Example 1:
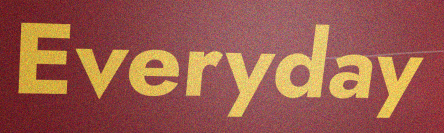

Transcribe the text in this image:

Everyday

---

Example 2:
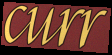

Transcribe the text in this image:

curr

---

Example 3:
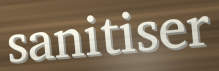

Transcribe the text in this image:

sanitiser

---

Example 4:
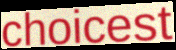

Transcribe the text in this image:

choicest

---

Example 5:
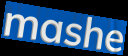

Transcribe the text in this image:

mashe